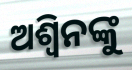
ଅଶ୍ବିନଙ୍କୁ